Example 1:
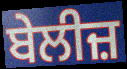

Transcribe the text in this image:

ਬੇਲੀਜ਼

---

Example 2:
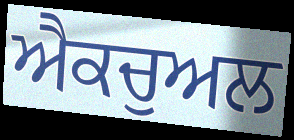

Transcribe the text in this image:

ਐਕਚੁਅਲ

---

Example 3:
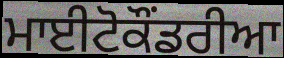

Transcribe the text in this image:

ਮਾਈਟੋਕੌਂਡਰੀਆ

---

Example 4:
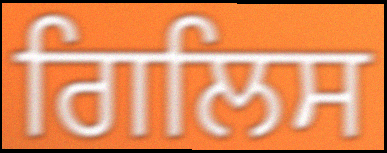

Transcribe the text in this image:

ਗਿਲਿਸ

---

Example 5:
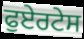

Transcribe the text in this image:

ਫੁਏਰਟੇਸ